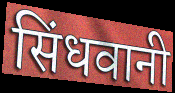
सिंधवानी